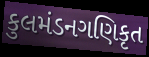
કુલમંડનગણિકૃત